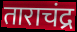
ताराचंद्र